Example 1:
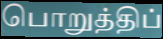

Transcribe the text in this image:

பொறுத்திப்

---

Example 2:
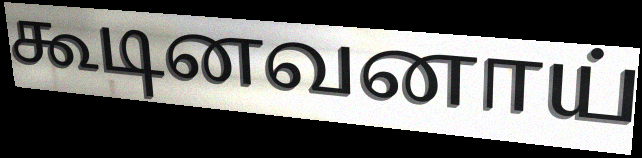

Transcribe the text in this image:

கூடினவனாய்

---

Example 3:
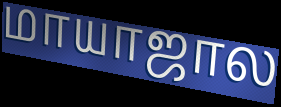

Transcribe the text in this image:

மாயாஜால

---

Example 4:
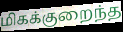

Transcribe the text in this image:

மிகக்குறைந்த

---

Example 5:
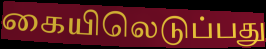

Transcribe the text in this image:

கையிலெடுப்பது